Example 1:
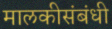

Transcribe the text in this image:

मालकीसंबंधी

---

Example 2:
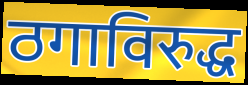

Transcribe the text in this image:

ठगाविरुद्ध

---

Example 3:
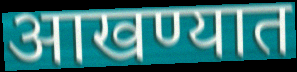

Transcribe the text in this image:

आखण्यात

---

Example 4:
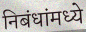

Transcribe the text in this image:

निबंधांमध्ये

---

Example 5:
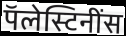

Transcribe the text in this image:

पॅलेस्टिनींस